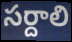
సర్దాలి